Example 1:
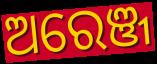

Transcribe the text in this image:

ଅରେଞ୍ଜ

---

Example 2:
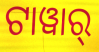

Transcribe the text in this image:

ଟାୱାର୍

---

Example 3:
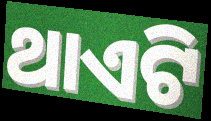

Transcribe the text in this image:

ଥାଏଟି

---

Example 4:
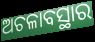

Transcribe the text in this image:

ଅଚଳାବସ୍ଥାର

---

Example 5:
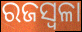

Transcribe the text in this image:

ରଜସ୍ବଳା